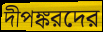
দীপঙ্করদের